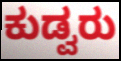
ಕುಡ್ವರು